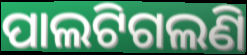
ପାଲଟିଗଲଣି